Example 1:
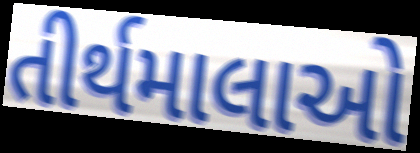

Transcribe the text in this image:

તીર્થમાલાઓ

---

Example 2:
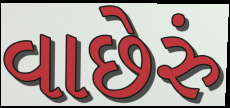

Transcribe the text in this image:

વાછેરું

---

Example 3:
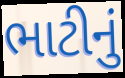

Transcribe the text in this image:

ભાટીનું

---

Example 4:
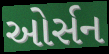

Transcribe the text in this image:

ઓર્સન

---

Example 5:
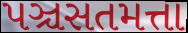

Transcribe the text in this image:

પઞ્ચસતમત્તા